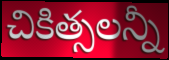
చికిత్సలన్నీ